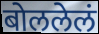
बोललेलं